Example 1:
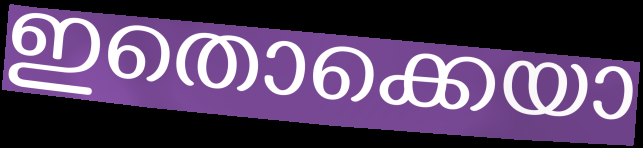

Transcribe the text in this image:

ഇതൊക്കെയാ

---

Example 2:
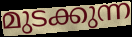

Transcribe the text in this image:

മുടക്കുന്ന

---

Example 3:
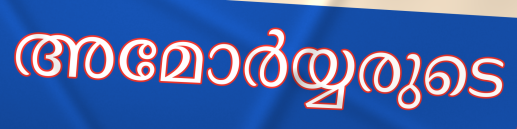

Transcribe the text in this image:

അമോർയ്യരുടെ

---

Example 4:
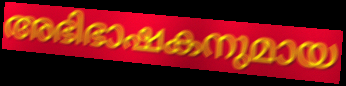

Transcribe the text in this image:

അഭിഭാഷകനുമായ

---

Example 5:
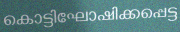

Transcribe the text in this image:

കൊട്ടിഘോഷിക്കപ്പെട്ട